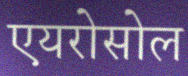
एयरोसोल